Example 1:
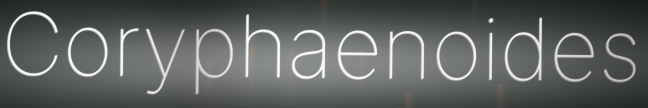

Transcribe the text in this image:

Coryphaenoides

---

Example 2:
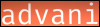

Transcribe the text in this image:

advani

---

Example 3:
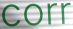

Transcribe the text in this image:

corr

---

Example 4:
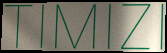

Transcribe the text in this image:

TIMIZI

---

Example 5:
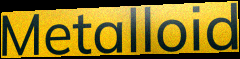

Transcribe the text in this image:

Metalloid